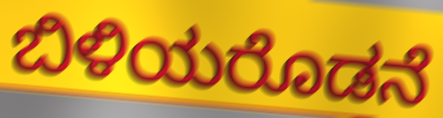
ಬಿಳಿಯರೊಡನೆ